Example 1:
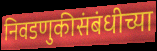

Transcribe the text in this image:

निवडणुकीसंबंधीच्या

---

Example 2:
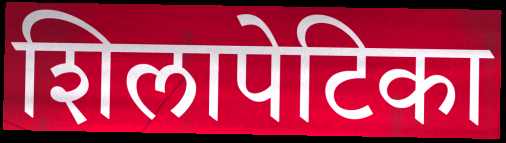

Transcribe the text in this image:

शिलापेटिका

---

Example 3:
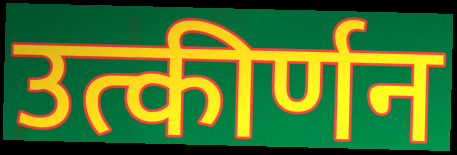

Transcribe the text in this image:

उत्कीर्णन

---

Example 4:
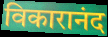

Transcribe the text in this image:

विकारानंद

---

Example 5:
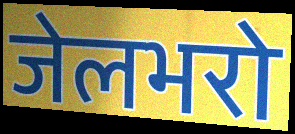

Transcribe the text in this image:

जेलभरो